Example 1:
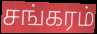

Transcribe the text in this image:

சங்கரம்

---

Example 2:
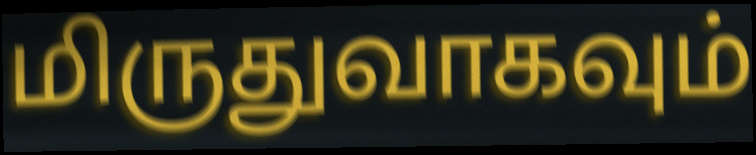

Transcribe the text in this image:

மிருதுவாகவும்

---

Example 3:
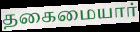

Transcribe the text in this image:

தகைமையார்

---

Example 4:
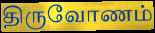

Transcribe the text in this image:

திருவோணம்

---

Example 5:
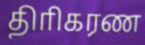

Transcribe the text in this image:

திரிகரண